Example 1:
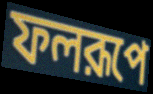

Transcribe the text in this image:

ফলরূপে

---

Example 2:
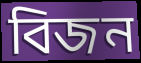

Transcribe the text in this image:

বিজন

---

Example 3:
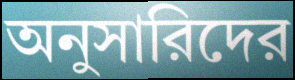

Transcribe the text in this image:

অনুসারিদের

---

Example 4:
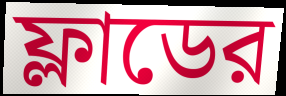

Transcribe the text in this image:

ফ্লাডের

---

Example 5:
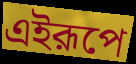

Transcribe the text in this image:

এইরূপে